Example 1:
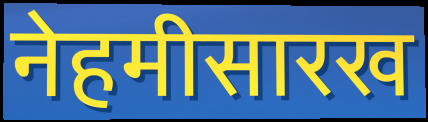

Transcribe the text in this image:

नेहमीसारख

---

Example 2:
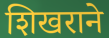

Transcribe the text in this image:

शिखराने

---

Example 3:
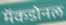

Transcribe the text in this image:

मॅकडोनल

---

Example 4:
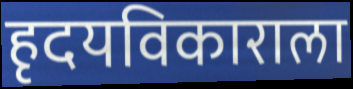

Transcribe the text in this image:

हृदयविकाराला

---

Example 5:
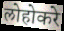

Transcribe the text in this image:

लोहोकरे